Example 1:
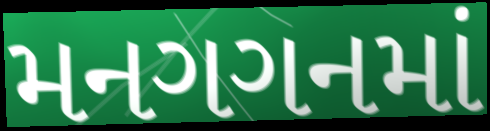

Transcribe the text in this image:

મનગગનમાં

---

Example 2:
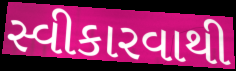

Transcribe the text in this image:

સ્વીકારવાથી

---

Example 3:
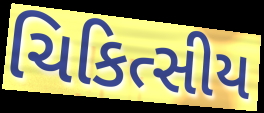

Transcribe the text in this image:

ચિકિત્સીય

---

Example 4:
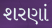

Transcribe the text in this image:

શરણાં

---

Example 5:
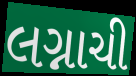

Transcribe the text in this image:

લગ્નાચી